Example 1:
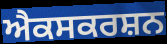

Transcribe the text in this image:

ਐਕਸਕਰਸ਼ਨ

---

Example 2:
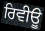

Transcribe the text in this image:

ਰਿਵੀਊ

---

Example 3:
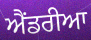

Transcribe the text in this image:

ਐਂਡਰੀਆ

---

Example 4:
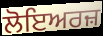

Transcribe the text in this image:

ਲੋਇਅਰਜ਼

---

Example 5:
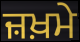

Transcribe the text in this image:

ਜ਼ਖ਼ਮੇ